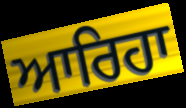
ਆਰਿਹਾ